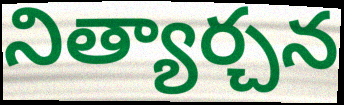
నిత్యార్చన